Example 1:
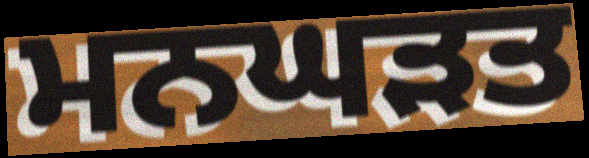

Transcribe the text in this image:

ਮਨਘੜਤ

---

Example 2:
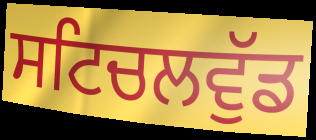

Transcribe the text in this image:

ਸਟਿਚਲਵੁੱਡ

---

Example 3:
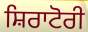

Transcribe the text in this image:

ਸ਼ਿਰਾਟੋਰੀ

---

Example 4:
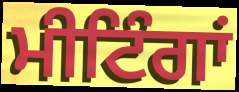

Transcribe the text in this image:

ਮੀਟਿੰਗਾਂ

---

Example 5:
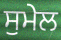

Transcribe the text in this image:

ਸੁਮੇਲ